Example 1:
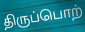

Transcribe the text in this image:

திருப்பொற்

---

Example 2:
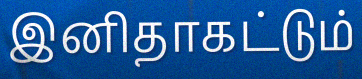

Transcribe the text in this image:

இனிதாகட்டும்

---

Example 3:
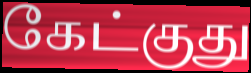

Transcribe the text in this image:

கேட்குது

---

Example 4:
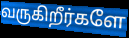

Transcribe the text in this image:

வருகிறீர்களே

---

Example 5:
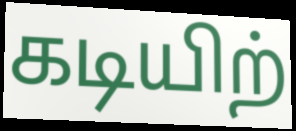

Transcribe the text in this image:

கடியிற்